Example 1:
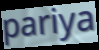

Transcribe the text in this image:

pariya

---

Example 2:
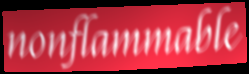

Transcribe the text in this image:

nonflammable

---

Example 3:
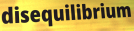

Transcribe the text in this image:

disequilibrium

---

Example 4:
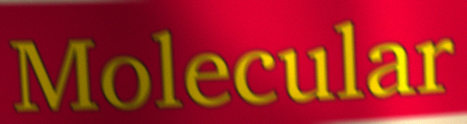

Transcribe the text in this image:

Molecular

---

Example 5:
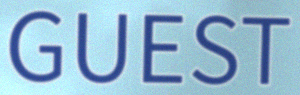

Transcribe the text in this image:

GUEST